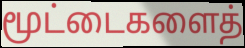
மூட்டைகளைத்